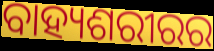
ବାହ୍ୟଶରୀରର